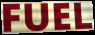
FUEL